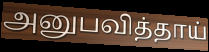
அனுபவித்தாய்